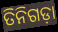
ତିନିଗଡ଼ା